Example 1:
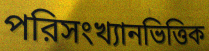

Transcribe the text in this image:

পরিসংখ্যানভিত্তিক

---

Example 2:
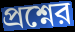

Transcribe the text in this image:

প্রশ্নের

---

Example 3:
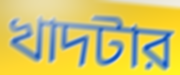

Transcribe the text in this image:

খাদটার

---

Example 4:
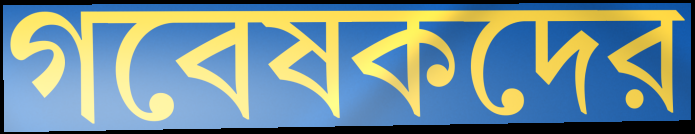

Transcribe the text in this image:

গবেষকদের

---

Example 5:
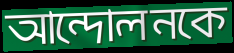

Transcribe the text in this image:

আন্দোলনকে